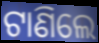
ଟାଣିଲେ